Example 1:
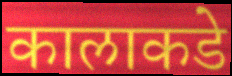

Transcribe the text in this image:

कालाकडे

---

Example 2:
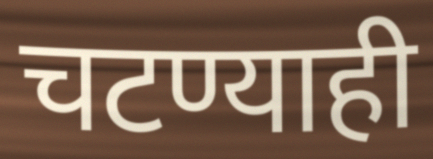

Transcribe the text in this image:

चटण्याही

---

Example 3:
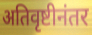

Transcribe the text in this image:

अतिवृष्टीनंतर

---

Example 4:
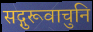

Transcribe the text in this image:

सद्गुरूवाचुनि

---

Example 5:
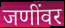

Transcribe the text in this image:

जणींवर